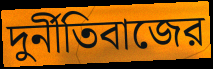
দুর্নীতিবাজের